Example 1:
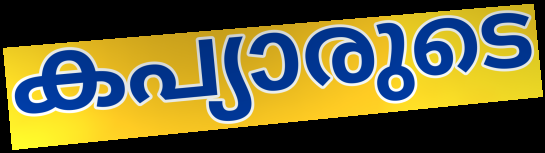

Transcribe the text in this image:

കപ്യാരുടെ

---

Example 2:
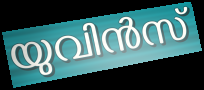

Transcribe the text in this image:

യുവിൻസ്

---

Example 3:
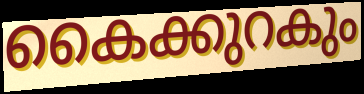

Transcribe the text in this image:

കൈക്കുറകും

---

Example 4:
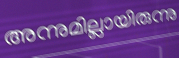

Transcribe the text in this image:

അന്നുമില്ലായിരുന്നു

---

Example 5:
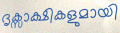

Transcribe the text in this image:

ദൃക്സാക്ഷികളുമായി